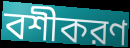
বশীকরণ